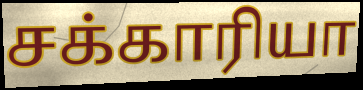
சக்காரியா